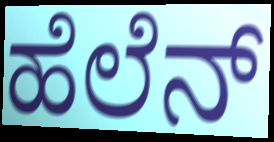
ಹೆಲೆನ್